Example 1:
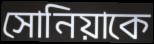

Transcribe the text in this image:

সোনিয়াকে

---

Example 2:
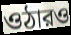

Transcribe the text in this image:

ওঠারও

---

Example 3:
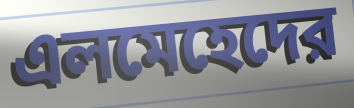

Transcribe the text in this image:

এলমেহেদের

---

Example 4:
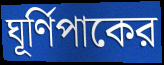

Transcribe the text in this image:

ঘূর্ণিপাকের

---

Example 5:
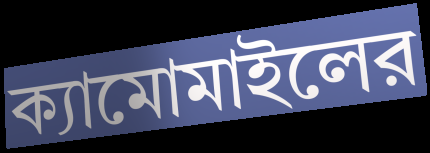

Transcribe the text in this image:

ক্যামোমাইলের